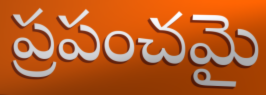
ప్రపంచమై